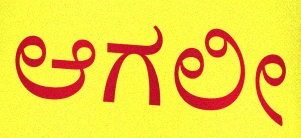
ಆಗಲೀ